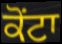
ਕੋਂਟਾ